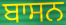
ਬਾਸਨ